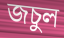
জচুল